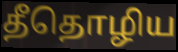
தீதொழிய